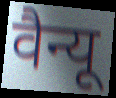
वैन्यू